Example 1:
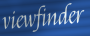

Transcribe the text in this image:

viewfinder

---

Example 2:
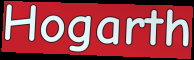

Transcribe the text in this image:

Hogarth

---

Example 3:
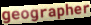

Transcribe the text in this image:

geographer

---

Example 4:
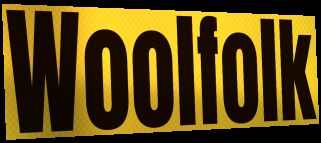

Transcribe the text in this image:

Woolfolk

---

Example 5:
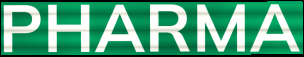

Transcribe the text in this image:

PHARMA